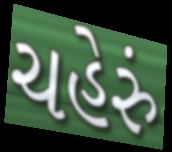
ચહેરું